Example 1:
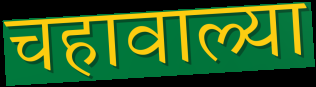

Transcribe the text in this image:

चहावाल्या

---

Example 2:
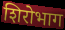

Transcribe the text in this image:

शिरोभाग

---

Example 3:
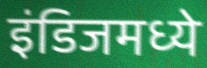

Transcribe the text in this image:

इंडिजमध्ये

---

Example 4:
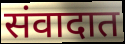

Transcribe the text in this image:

संवादात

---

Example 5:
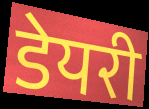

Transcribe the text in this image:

डेयरी